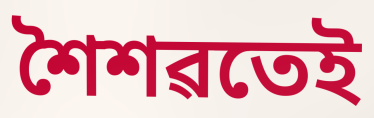
শৈশৱতেই